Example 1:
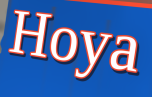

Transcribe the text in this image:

Hoya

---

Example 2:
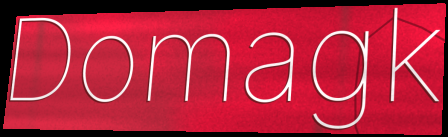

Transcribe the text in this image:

Domagk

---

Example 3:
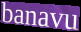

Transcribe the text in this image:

banavu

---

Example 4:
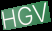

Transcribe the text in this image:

HGV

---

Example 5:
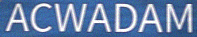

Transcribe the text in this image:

ACWADAM